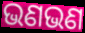
ଭଣଭଣ